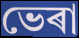
ভেৰা